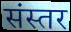
संस्तर